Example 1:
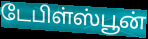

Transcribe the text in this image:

டேபிள்ஸ்பூன்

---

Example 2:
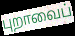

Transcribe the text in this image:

புறாவைப்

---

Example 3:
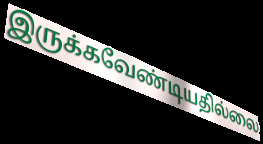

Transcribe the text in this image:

இருக்கவேண்டியதில்லை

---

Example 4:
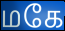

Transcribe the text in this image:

மகே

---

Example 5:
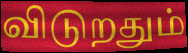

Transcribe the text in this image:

விடுறதும்